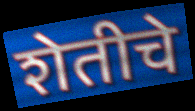
शेतीचे